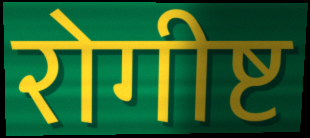
रोगीष्ट